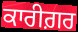
ਕਾਰੀਗ਼ਰ